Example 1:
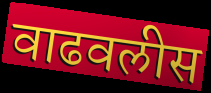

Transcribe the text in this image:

वाढवलीस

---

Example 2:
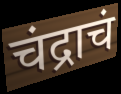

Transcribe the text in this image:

चंद्राचं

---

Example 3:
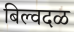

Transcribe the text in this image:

बिल्वदळ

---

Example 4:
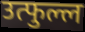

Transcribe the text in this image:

उत्फुल्ल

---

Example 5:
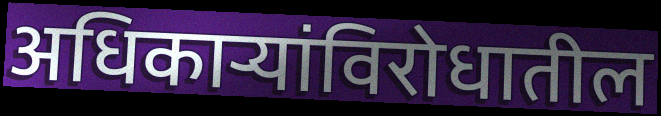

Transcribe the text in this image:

अधिकाऱ्यांविरोधातील